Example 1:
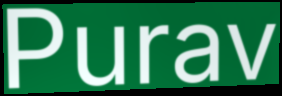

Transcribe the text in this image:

Purav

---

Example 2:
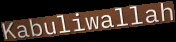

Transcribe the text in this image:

Kabuliwallah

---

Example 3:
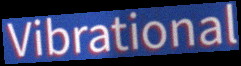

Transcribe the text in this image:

Vibrational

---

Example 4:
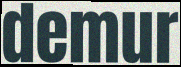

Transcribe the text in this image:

demur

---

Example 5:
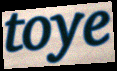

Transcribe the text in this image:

toye